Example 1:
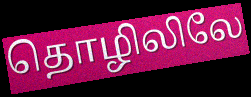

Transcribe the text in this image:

தொழிலிலே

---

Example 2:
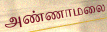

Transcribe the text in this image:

அண்ணாமலை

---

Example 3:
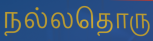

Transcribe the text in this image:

நல்லதொரு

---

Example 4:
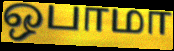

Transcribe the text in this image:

ஒபாமா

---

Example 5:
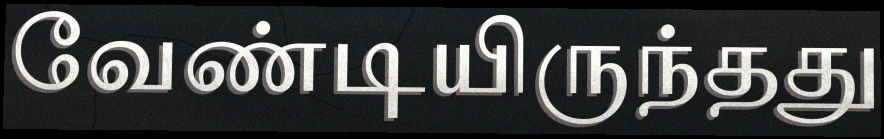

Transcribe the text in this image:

வேண்டியிருந்தது